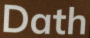
Dath